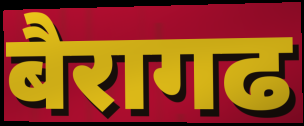
बैरागढ